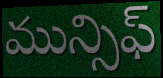
మున్సిఫ్